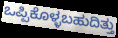
ಒಪ್ಪಿಕೊಳ್ಳಬಹುದಿತ್ತು